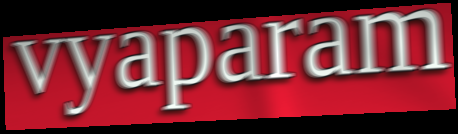
vyaparam